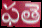
ఫతె